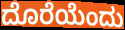
ದೊರೆಯೆಂದು